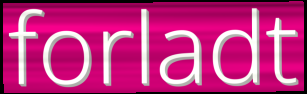
forladt